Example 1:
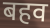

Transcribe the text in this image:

बहव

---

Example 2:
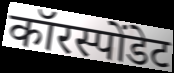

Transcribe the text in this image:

कॉरस्पोंडेट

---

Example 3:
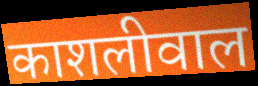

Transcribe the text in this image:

काशलीवाल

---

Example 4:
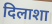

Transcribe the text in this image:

दिलाशा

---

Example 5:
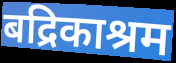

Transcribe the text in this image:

बद्रिकाश्रम